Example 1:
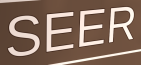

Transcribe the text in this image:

SEER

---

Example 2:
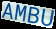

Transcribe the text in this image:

AMBU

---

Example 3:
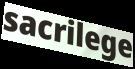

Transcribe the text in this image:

sacrilege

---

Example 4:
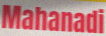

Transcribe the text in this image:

Mahanadi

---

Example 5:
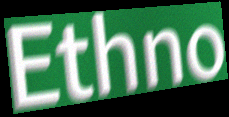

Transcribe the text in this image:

Ethno